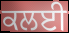
ਕਲਈ